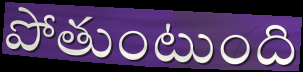
పోతుంటుంది